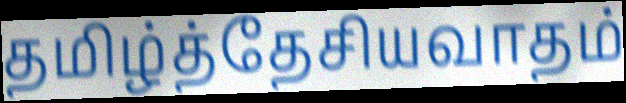
தமிழ்த்தேசியவாதம்